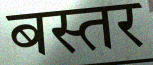
बस्तर